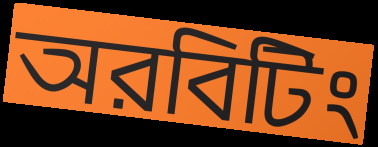
অরবিটিং